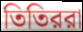
তিতিররা